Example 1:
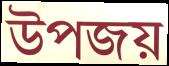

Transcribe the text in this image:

উপজয়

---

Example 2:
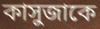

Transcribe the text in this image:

কাসুজাকে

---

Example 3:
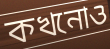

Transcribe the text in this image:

কখনোও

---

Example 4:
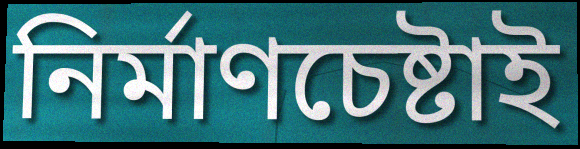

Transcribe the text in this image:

নির্মাণচেষ্টাই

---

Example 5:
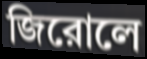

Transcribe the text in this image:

জিরোলে